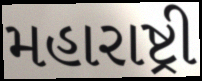
મહારાષ્ટ્રી